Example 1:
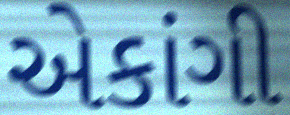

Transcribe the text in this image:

એકાંગી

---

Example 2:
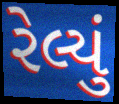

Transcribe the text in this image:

રેલ્યું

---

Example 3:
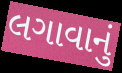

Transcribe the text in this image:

લગાવાનું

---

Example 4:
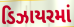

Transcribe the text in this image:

ડિઝાયરમાં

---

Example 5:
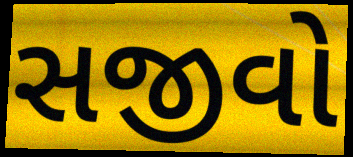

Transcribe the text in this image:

સજીવો